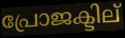
പ്രോജക്ടില്